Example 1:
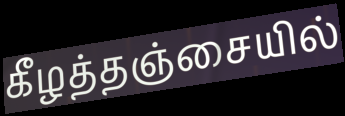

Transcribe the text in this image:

கீழத்தஞ்சையில்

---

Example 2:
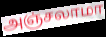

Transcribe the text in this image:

அஞ்சலாமா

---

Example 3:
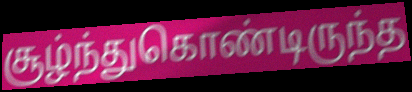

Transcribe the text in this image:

சூழ்ந்துகொண்டிருந்த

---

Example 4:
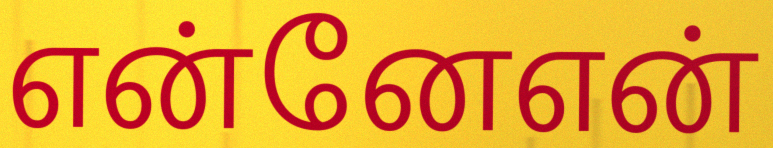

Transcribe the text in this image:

என்னேஎன்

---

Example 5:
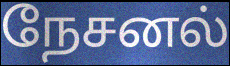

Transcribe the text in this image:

நேசனல்